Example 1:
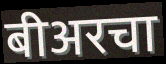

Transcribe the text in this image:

बीअरचा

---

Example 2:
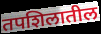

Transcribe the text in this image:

तपशिलातील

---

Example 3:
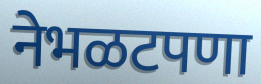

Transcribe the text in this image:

नेभळटपणा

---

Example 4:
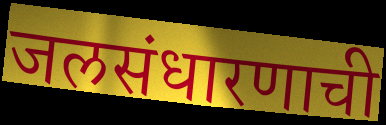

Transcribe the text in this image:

जलसंधारणाची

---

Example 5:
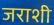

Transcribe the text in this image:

जराशी